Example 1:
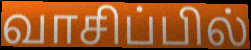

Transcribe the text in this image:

வாசிப்பில்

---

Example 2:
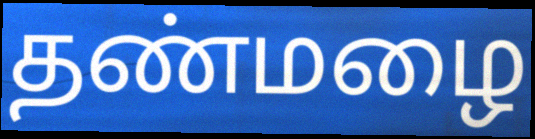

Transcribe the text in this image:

தண்மழை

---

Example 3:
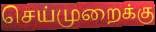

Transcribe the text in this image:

செய்முறைக்கு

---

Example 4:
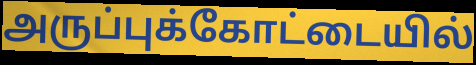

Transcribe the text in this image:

அருப்புக்கோட்டையில்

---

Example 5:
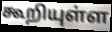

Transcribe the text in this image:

கூறியுள்ள